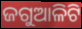
ଜଗୁଆଳିଟି